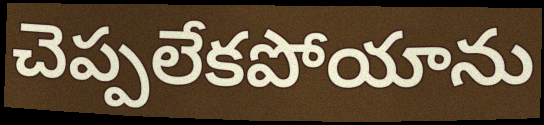
చెప్పలేకపోయాను